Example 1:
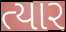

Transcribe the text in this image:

ત્યાર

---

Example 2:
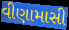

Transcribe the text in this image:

વીણામાસી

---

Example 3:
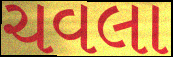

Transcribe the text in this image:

ચવલા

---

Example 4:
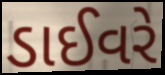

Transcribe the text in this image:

ડાઈવરે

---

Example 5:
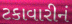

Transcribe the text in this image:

ટકાવારીનં